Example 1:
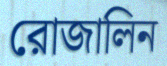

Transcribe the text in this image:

রোজালিন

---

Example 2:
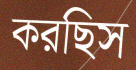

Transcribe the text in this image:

করছিস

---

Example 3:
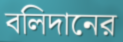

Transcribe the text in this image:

বলিদানের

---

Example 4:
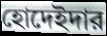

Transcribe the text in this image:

হোদেইদার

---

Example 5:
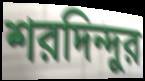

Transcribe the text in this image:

শরদিন্দুর